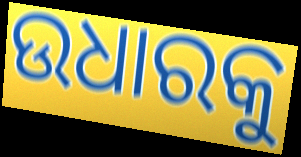
ଉଧାରକୁ